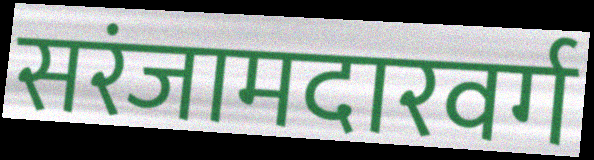
सरंजामदारवर्ग